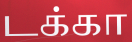
டக்கா